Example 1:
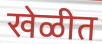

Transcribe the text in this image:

खेळीत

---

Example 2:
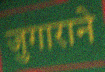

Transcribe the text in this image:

जुगाराने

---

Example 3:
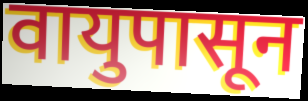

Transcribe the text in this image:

वायुपासून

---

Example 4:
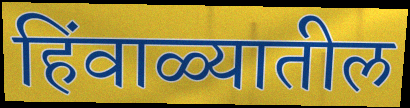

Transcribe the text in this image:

हिंवाळ्यातील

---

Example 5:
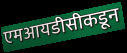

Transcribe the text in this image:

एमआयडीसीकडून